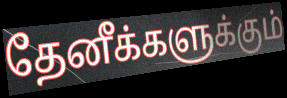
தேனீக்களுக்கும்